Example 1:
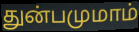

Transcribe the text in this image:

துன்பமுமாம்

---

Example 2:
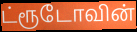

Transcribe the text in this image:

ட்ரூடோவின்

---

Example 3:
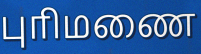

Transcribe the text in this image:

புரிமணை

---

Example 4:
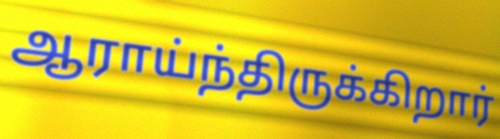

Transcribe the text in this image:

ஆராய்ந்திருக்கிறார்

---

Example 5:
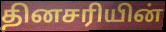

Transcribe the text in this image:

தினசரியின்